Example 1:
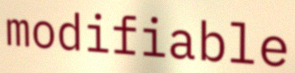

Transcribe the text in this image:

modifiable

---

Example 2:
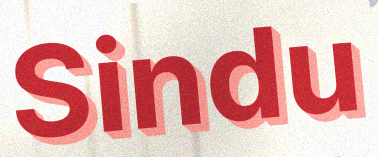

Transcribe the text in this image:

Sindu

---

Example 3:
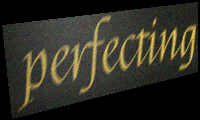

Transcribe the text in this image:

perfecting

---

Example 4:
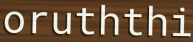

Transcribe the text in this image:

oruththi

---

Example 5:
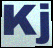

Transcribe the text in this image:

Kj